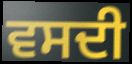
ਵਸਦੀ